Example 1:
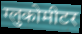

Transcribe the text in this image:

ग्लुकोमीटर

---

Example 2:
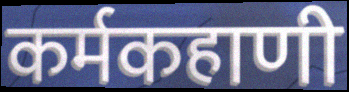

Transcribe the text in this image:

कर्मकहाणी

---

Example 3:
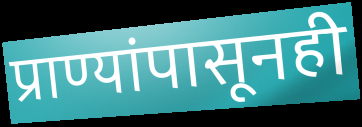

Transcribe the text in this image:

प्राण्यांपासूनही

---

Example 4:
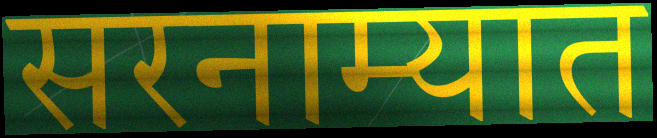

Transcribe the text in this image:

सरनाम्यात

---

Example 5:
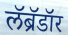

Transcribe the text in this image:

लॅब्रॅडॉर